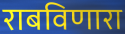
राबविणारा